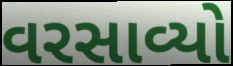
વરસાવ્યો